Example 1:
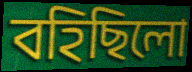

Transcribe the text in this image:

বহিছিলো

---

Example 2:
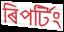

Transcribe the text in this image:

ৰিপৰ্টিং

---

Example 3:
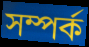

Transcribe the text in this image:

সম্পৰ্ক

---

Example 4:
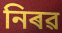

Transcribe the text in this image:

নিৰৱ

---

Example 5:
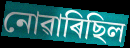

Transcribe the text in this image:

নোৱাৰিছিল